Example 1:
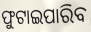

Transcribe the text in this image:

ଫୁଟାଇପାରିବ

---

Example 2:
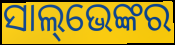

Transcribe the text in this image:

ସାଲ୍‌ଭେଙ୍କର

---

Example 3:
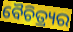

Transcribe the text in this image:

ବୈଚିତ୍ର୍ୟର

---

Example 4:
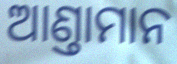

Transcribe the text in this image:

ଆଣ୍ତାମାନ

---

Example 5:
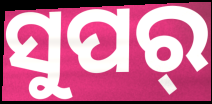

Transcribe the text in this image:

ସୁପର୍